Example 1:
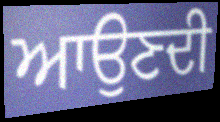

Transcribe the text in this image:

ਆਉਣਦੀ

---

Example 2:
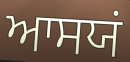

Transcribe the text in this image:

ਆਸਯਂ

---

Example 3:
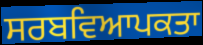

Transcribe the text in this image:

ਸਰਬਵਿਆਪਕਤਾ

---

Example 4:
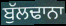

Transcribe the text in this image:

ਬੁੱਲਢਾਨਾ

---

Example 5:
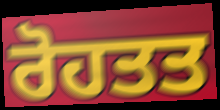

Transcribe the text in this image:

ਰੋਹਤਤ